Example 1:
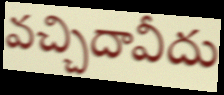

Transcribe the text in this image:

వచ్చిదావీదు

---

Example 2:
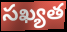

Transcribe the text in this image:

సఖ్యత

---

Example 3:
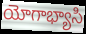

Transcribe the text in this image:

యోగాభ్యాసి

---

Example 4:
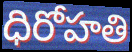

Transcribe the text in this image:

ధిరోహతి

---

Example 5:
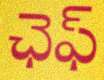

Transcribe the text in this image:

ఛెఫ్